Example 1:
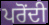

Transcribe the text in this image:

ਪਰੋਂਦੀ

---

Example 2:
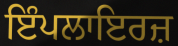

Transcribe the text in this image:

ਇੰਪਲਾਇਰਜ਼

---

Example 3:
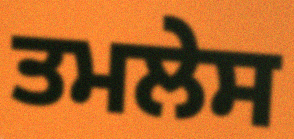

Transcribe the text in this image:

ਤਮਲੇਸ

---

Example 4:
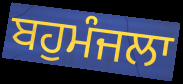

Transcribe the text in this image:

ਬਹੁਮੰਜਲਾ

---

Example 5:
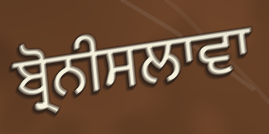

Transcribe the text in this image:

ਬ੍ਰੋਨੀਸਲਾਵਾ